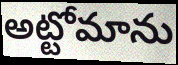
అట్టోమాను